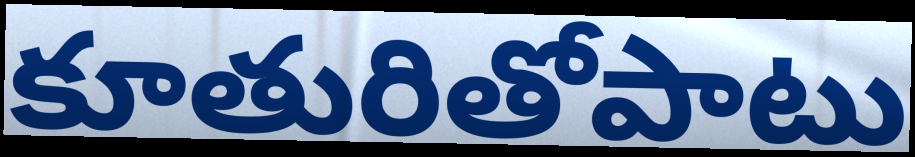
కూతురితోపాటు